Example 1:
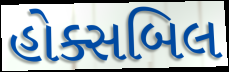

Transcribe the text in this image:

હોક્સબિલ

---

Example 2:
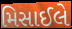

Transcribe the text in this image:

મિસાઈલે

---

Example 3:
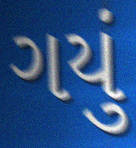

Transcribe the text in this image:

ગયું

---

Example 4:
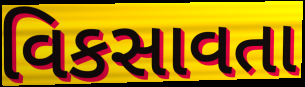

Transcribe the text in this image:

વિકસાવતા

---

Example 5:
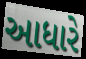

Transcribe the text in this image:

આધારે